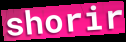
shorir